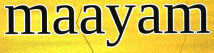
maayam